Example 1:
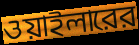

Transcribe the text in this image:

ওয়াইলারের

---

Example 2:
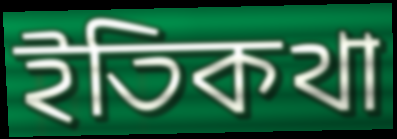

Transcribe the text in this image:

ইতিকথা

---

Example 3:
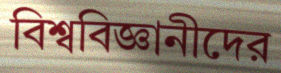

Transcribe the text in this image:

বিশ্ববিজ্ঞানীদের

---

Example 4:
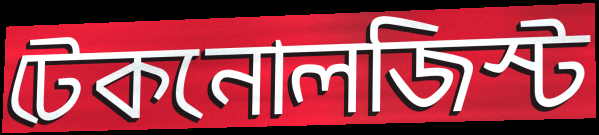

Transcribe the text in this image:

টেকনোলজিস্ট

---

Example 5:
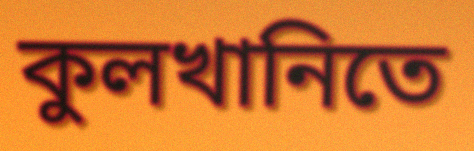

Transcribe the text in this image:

কুলখানিতে